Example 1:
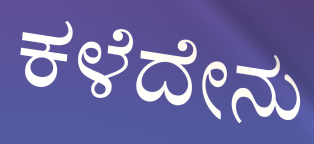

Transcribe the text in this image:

ಕಳೆದೇನು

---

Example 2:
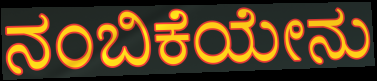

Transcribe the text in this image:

ನಂಬಿಕೆಯೇನು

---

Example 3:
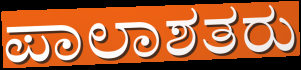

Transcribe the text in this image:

ಪಾಲಾಶತರು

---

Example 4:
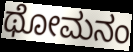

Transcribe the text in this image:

ಥೋಮನಂ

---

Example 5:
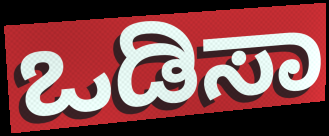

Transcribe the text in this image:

ಒಡಿಸಾ